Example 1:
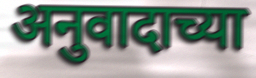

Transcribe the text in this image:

अनुवादाच्या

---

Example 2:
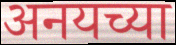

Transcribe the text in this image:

अनयच्या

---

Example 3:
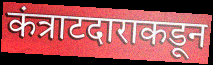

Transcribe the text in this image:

कंत्राटदाराकडून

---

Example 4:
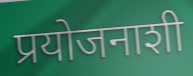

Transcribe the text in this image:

प्रयोजनाशी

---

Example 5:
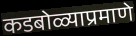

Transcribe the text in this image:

कडबोळ्याप्रमाणे